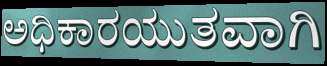
ಅಧಿಕಾರಯುತವಾಗಿ